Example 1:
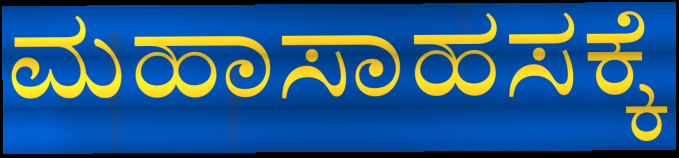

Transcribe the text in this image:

ಮಹಾಸಾಹಸಕ್ಕೆ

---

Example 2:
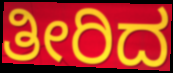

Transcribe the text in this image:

ತೀರಿದ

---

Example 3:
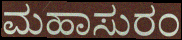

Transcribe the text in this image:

ಮಹಾಸುರಂ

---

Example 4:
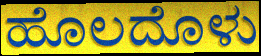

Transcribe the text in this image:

ಹೊಲದೊಳು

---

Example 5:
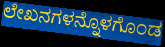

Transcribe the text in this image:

ಲೇಖನಗಳನ್ನೊಳಗೊಂಡ